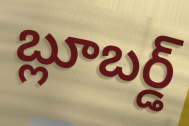
బ్లూబర్డ్